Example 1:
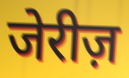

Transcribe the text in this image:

जेरीज़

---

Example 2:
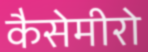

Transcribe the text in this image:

कैसेमीरो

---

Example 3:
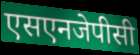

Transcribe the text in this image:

एसएनजेपीसी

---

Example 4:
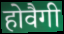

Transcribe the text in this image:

होवैगी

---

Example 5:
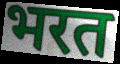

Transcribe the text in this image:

भरत